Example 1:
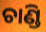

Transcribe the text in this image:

ଚାଣ୍ଡି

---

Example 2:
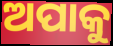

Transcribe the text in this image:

ଅପାକୁ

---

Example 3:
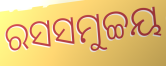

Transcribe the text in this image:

ରସସମୁଚ୍ଚୟ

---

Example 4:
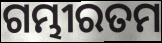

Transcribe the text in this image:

ଗମ୍ଭୀରତମ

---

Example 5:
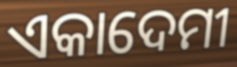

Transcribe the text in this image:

ଏକାଦେମୀ